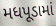
મધપૂડામાં